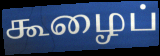
கூழைப்